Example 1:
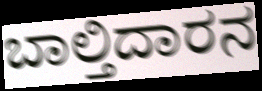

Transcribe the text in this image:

ಬಾಲ್ತಿದಾರನ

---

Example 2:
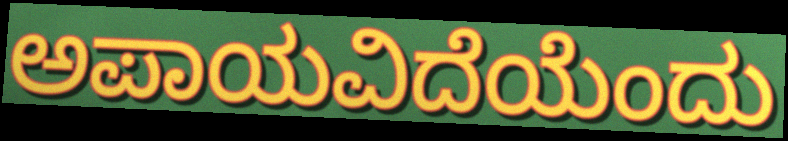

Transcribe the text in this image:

ಅಪಾಯವಿದೆಯೆಂದು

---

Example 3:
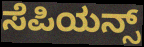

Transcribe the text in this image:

ಸೆಪಿಯನ್ಸ್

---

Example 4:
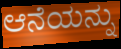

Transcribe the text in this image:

ಆನೆಯನ್ನು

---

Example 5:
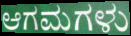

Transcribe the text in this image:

ಆಗಮಗಳು